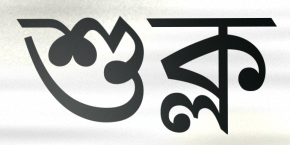
শুক্ল